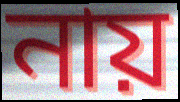
নায়